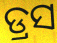
ଡ୍ରସ